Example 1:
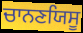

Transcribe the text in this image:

ਚਾਨਣਯਿਸੂ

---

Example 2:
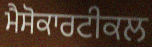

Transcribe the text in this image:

ਮੈਸੋਕਾਰਟੀਕਲ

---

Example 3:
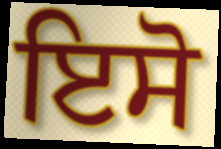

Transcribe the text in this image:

ਇਸੋ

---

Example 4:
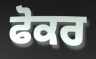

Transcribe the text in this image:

ਫੋਕਰ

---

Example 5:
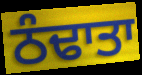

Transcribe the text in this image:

ਠੰਢਾਤਾ